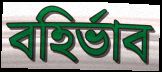
বহির্ভাব